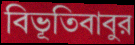
বিভূতিবাবুর